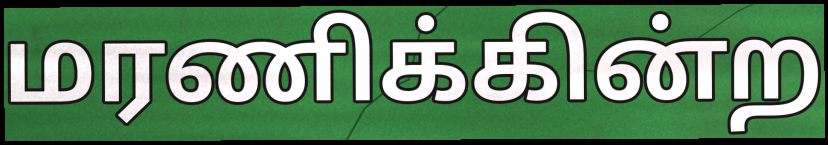
மரணிக்கின்ற